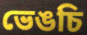
ভেঙচি